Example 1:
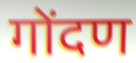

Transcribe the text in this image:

गोंदण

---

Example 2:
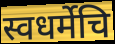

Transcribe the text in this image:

स्वधर्मेचि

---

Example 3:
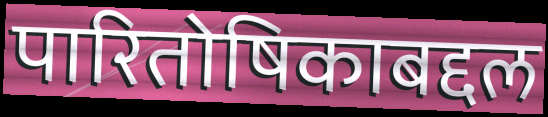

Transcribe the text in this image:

पारितोषिकाबद्दल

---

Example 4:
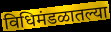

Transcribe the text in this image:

विधिमंडळातल्या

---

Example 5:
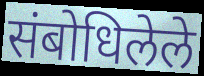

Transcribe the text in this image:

संबोधिलेले